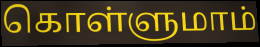
கொள்ளுமாம்